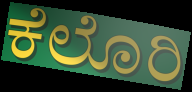
ಕೆಲೊರಿ